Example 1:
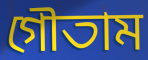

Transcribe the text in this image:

গৌতাম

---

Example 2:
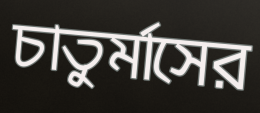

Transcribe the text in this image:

চাতুর্মাসের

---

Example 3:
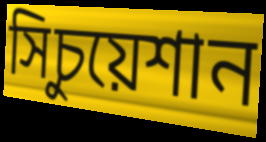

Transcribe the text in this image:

সিচুয়েশান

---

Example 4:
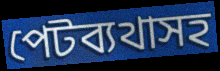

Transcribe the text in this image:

পেটব্যথাসহ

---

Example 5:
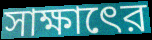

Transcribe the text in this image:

সাক্ষাৎের